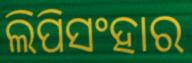
ଲିପିସଂହାର